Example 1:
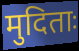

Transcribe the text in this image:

मुदिताः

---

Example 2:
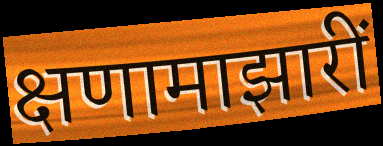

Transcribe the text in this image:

क्षणामाझारीं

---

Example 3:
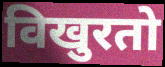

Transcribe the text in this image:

विखुरतो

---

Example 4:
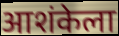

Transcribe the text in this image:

आशंकेला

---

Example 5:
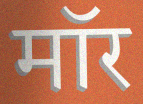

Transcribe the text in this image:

मॉर